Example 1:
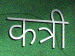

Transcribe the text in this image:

कत्री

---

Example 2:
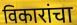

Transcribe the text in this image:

विकारांचा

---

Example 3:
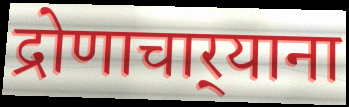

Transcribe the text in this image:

द्रोणाचार्याना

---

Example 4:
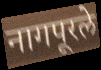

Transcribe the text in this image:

नागपूरले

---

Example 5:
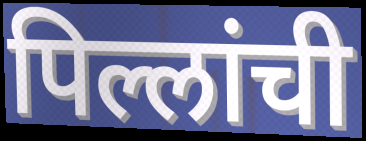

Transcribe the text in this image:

पिल्लांची